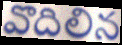
వొదిలిన